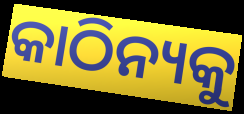
କାଠିନ୍ୟକୁ